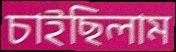
চাইছিলাম